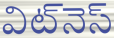
విట్‌నెస్